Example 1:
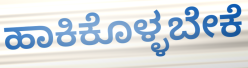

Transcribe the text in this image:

ಹಾಕಿಕೊಳ್ಳಬೇಕೆ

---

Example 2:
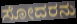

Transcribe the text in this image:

ಸೋದರನು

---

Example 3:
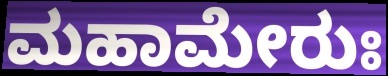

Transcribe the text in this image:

ಮಹಾಮೇರುಃ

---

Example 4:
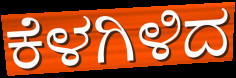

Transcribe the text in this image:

ಕೆಳಗಿಳಿದ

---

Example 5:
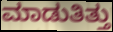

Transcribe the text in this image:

ಮಾಡುತಿತ್ತು